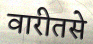
वारीतसे